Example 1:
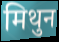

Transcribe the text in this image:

मिथुन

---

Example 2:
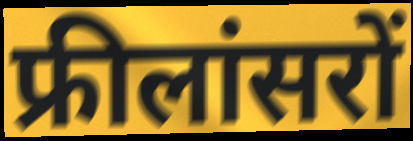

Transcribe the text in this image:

फ्रीलांसरों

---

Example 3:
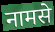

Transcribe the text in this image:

नामसे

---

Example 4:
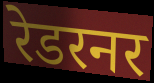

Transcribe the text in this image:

रेडरनर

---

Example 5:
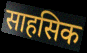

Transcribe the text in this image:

साहसिक